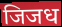
जिजध